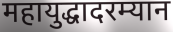
महायुद्धादरम्यान